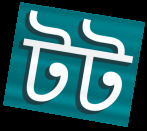
টট